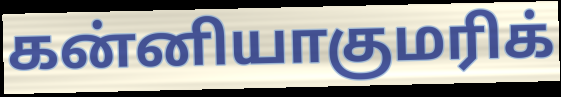
கன்னியாகுமரிக்